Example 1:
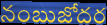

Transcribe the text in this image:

నంబుజోదర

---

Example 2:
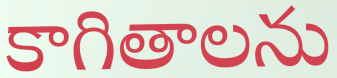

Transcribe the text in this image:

కాగితాలను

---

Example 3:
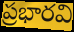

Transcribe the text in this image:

ప్రభారవి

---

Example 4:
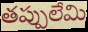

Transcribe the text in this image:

తప్పులేమి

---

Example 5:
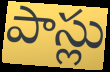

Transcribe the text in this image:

పాస్లు